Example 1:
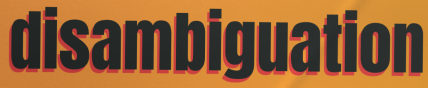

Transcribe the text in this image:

disambiguation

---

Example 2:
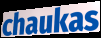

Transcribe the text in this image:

chaukas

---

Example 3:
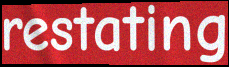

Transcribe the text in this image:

restating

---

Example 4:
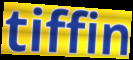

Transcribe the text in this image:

tiffin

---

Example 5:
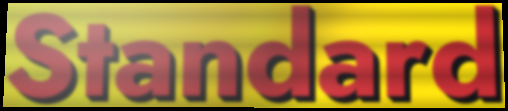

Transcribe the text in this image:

Standard